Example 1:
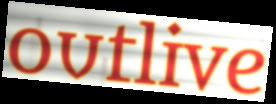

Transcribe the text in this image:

outlive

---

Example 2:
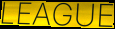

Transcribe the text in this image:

LEAGUE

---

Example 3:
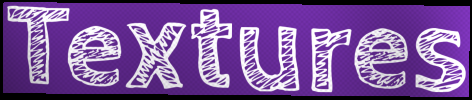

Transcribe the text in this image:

Textures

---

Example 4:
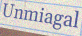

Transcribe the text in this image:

Unmiagal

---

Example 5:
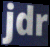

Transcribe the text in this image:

jdr